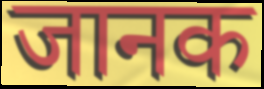
जानक